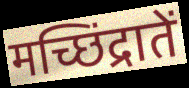
मच्छिंद्रातें